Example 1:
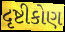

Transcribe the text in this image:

દૃષ્ટીકોણ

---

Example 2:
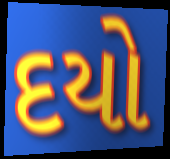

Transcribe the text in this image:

દયો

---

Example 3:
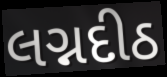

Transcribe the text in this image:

લગ્નદીઠ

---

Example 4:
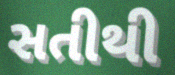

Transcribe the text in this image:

સતીથી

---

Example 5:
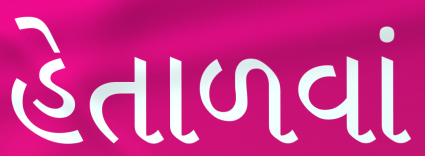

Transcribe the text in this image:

હેતાળવાં